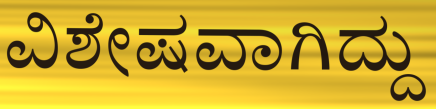
ವಿಶೇಷವಾಗಿದ್ದು